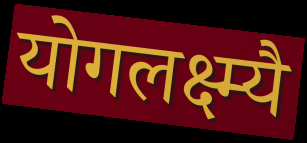
योगलक्ष्म्यै